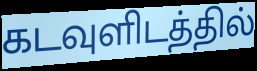
கடவுளிடத்தில்